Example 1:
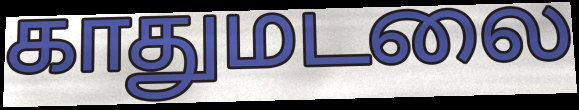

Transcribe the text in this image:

காதுமடலை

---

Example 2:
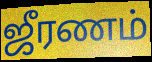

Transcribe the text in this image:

ஜீரணம்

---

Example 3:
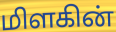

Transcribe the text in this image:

மிளகின்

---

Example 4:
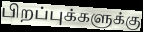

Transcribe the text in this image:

பிறப்புக்களுக்கு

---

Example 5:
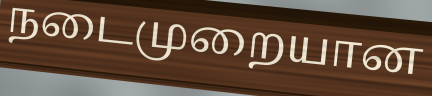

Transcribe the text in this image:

நடைமுறையான